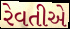
રેવતીએ